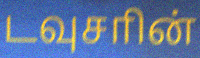
டவுசரின்